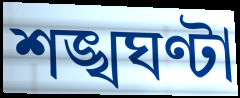
শঙ্খঘণ্টা